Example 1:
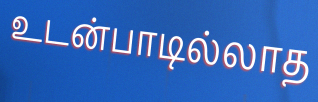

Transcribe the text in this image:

உடன்பாடில்லாத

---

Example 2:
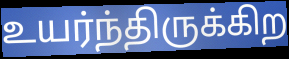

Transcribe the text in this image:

உயர்ந்திருக்கிற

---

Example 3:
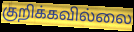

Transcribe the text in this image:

குறிக்கவில்லை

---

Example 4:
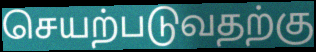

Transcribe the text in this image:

செயற்படுவதற்கு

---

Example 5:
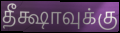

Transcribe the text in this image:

தீக்ஷாவுக்கு